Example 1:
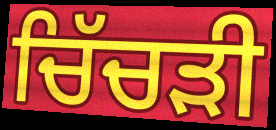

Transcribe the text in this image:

ਚਿੱਚੜੀ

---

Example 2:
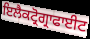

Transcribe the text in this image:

ਇਲੈਕਟ੍ਰੋਗ੍ਰਾਫਾਈਟ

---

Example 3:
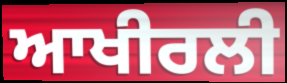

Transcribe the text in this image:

ਆਖੀਰਲੀ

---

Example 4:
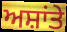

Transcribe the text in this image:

ਅਸ਼ਾਂਤੇ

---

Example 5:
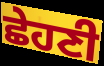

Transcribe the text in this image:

ਛੇਹਣੀ